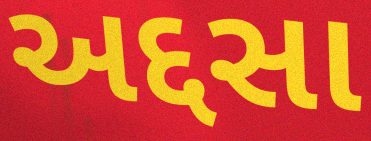
અદ્દસા